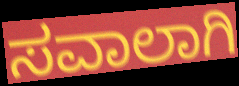
ಸವಾಲಾಗಿ